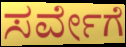
ಸರ್ವೇಗೆ